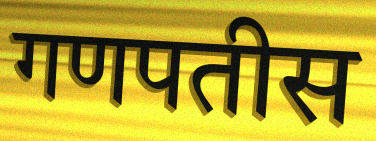
गणपतीस